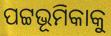
ପଟ୍ଟଭୂମିକାକୁ